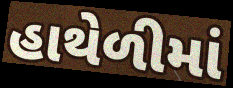
હાથેળીમાં